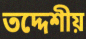
তদ্দেশীয়